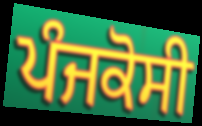
ਪੰਜਕੋਸੀ